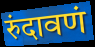
रुंदावणं